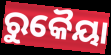
ରୁକୈୟା